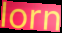
lorn